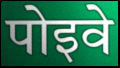
पोइवे